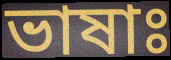
ভাষাঃ